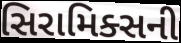
સિરામિક્સની